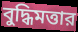
বুদ্ধিমত্তার